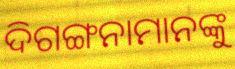
ଦିଗଙ୍ଗନାମାନଙ୍କୁ